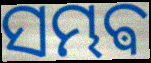
ସମ୍ଭଵ